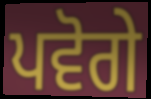
ਪਵੋਗੇ